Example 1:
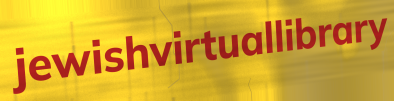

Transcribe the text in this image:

jewishvirtuallibrary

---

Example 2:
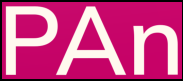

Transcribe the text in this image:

PAn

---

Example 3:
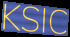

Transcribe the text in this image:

KSIC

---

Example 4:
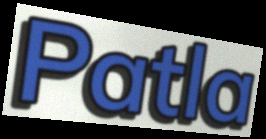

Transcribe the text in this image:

Patla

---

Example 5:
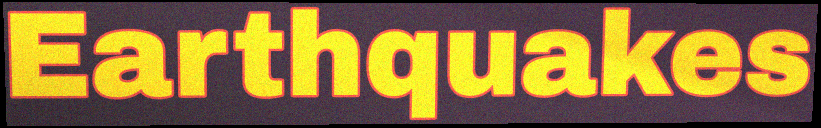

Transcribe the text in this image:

Earthquakes